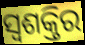
ସ୍ଵଶକ୍ତିର